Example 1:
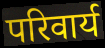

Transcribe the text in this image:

परिवार्य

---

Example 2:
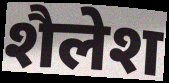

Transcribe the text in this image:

शैलेश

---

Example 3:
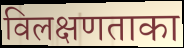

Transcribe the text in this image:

विलक्षणताका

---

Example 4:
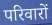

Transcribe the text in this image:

परिवारों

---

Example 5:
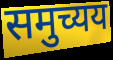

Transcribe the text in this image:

समुच्यय